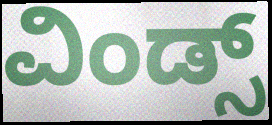
ವಿಂಡ್ಸ್